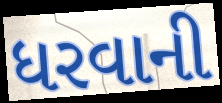
ધરવાની